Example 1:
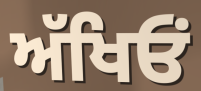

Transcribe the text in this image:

ਅੱਖਿਓਂ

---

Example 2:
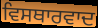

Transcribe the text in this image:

ਵਿਸਥਾਰਵਾਦ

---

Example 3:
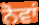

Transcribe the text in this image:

ਨੋਵਾਂ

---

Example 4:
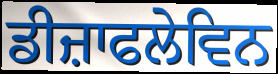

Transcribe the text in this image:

ਡੀਜ਼ਾਫਲੇਵਿਨ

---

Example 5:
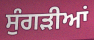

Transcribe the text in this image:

ਸੁੰਗੜੀਆਂ